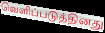
வெளிப்படுத்தினது